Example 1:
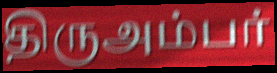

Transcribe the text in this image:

திருஅம்பர்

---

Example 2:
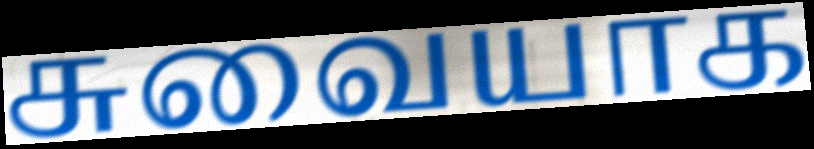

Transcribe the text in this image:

சுவையாக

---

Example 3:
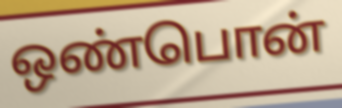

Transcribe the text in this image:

ஒண்பொன்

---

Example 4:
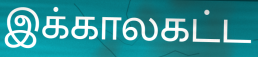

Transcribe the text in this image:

இக்காலகட்ட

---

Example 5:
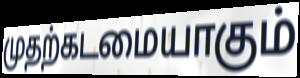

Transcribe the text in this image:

முதற்கடமையாகும்